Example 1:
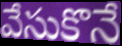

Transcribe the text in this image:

వేసుకొనే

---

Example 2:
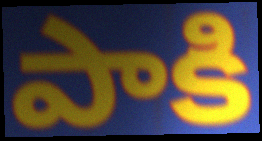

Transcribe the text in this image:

పాకి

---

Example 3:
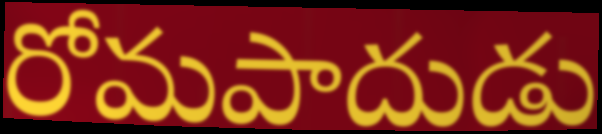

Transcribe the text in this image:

రోమపాదుడు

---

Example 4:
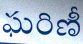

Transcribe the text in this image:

ఘరిణీ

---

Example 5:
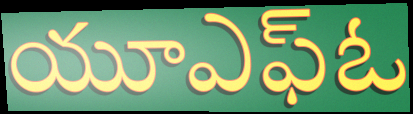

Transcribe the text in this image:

యూఎఫ్ఓ